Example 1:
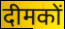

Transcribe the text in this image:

दीमकों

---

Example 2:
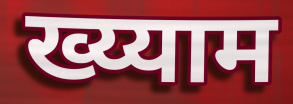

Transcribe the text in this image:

ख्य्याम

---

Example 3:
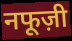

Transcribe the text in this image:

नफूज़ी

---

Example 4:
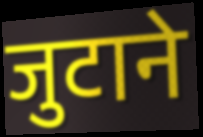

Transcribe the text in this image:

जुटाने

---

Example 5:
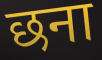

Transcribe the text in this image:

छना